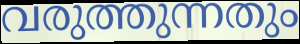
വരുത്തുന്നതും